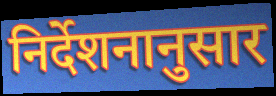
निर्देशनानुसार